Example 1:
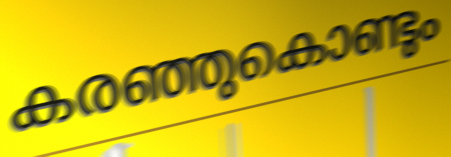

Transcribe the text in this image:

കരഞ്ഞുകൊണ്ടും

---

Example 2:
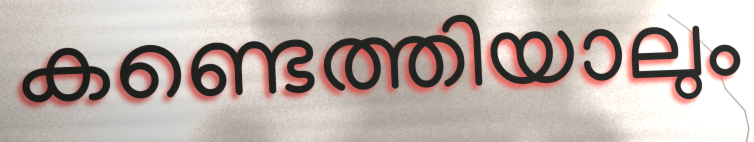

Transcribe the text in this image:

കണ്ടെത്തിയാലും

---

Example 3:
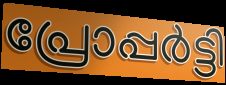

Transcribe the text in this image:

പ്രോപ്പർട്ടി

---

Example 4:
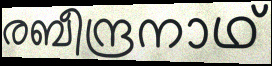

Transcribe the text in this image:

രബീന്ദ്രനാഥ്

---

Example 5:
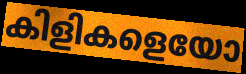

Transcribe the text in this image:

കിളികളെയോ